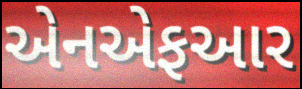
એનએફઆર